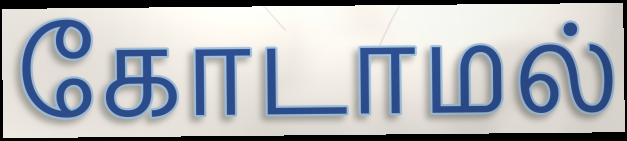
கோடாமல்